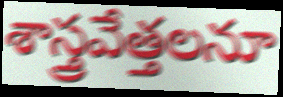
శాస్త్రవేత్తలనూ